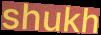
shukh